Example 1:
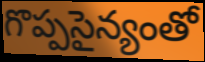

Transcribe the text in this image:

గొప్పసైన్యంతో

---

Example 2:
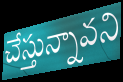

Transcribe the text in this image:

చేస్తున్నావని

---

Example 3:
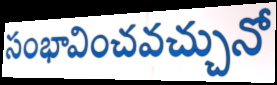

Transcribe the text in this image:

సంభావించవచ్చునో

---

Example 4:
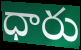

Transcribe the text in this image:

ధారు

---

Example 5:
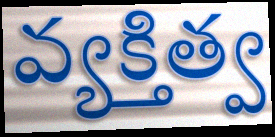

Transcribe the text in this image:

వ్యక్తిత్వ